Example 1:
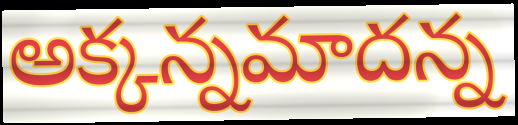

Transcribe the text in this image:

అక్కన్నమాదన్న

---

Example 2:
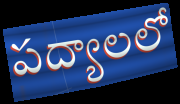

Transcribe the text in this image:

పద్యాలలో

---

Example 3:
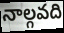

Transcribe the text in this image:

నాల్గవది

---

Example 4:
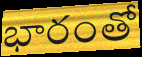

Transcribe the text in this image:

భారంతో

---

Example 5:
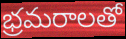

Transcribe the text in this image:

భ్రమరాలతో